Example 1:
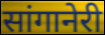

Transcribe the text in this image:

सांगानेरी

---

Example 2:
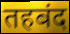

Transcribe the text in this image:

तहबंद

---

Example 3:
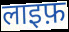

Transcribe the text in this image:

लाइफ़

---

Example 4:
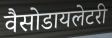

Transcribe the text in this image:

वैसोडायलेटरी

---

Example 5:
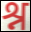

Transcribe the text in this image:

श्न